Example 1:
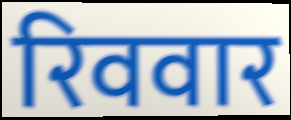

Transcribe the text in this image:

रिववार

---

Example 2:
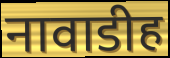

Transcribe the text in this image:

नावाडीह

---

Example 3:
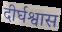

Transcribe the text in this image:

दीर्घश्वास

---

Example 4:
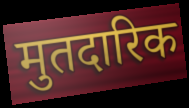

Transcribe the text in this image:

मुतदारिक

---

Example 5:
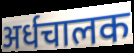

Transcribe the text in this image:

अर्धचालक